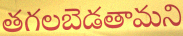
తగలబెడతామని